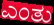
ಎಂತು